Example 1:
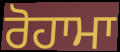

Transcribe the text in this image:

ਰੋਹਾਮਾ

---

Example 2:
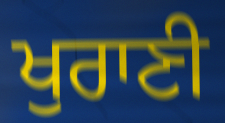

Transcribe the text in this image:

ਖੁਰਾਣੀ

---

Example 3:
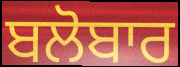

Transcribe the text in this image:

ਬਲੋਬਾਰ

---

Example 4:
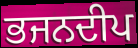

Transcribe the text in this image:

ਭਜਨਦੀਪ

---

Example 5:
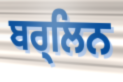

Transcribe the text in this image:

ਬਰ੍ਲਿਨ